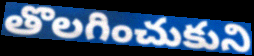
తొలగించుకుని